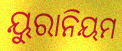
ୟୁରାନିୟମ